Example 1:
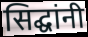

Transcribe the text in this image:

सिद्घांनी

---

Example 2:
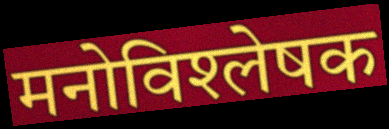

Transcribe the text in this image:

मनोविश्लेषक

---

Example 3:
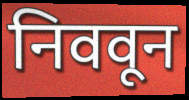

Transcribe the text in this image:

निववून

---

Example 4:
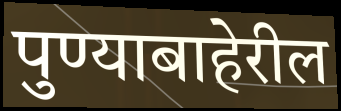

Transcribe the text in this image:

पुण्याबाहेरील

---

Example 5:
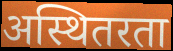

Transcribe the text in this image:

अस्थितरता